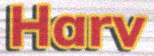
Harv